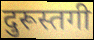
दुरूस्तगी